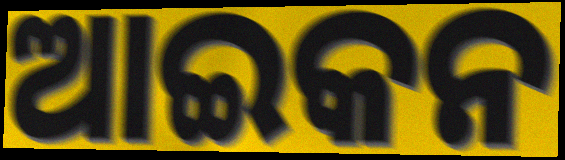
ଆଇକନ